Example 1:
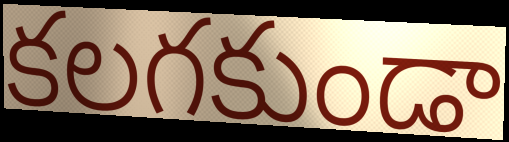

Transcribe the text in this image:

కలగకుండా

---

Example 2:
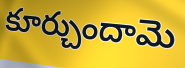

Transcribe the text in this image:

కూర్చుందామె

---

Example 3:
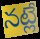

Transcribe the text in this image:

నట్లే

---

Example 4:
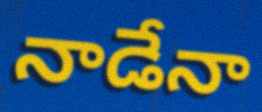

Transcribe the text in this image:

నాడేనా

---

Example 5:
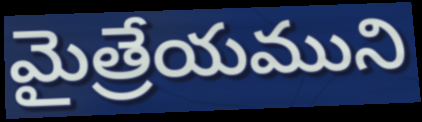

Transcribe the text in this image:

మైత్రేయముని